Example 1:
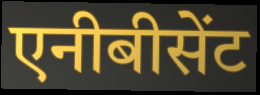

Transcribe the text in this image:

एनीबीसेंट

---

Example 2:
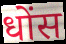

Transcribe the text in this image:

धोंस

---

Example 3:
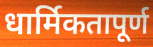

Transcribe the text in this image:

धार्मिकतापूर्ण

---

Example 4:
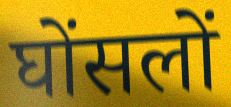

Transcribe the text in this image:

घोंसलों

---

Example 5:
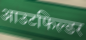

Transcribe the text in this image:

आउटफिल्डर